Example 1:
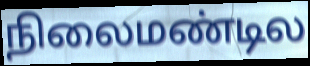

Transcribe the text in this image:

நிலைமண்டில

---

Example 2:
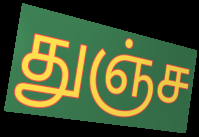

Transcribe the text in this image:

துஞ்ச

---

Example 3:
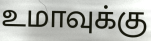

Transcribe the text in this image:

உமாவுக்கு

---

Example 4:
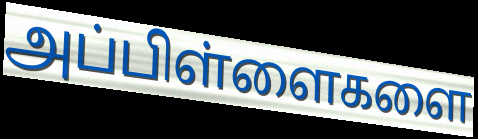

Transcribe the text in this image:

அப்பிள்ளைகளை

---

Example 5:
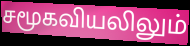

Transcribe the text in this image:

சமூகவியலிலும்